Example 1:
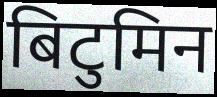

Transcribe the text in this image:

बिटुमिन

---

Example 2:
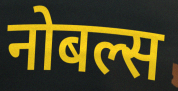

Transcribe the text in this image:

नोबल्स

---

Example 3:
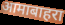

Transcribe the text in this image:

आमाबाहरा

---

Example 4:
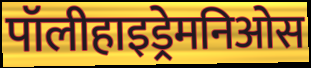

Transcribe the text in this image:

पॉलीहाइड्रेमनिओस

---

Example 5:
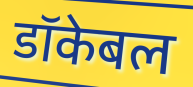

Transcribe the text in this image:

डॉकेबल